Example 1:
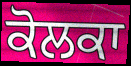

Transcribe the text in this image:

ਕੋਲਕਾ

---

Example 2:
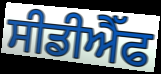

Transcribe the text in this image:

ਸੀਡੀਐੱਫ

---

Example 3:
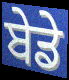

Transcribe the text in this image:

ਬੇਡੇ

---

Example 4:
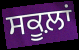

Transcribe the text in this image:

ਸਕੂਲ਼ਾਂ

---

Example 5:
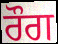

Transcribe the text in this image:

ਰੌਗ